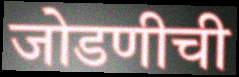
जोडणीची